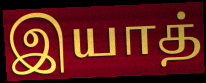
இயாத்